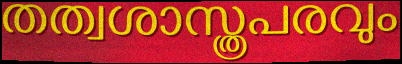
തത്വശാസ്ത്രപരവും